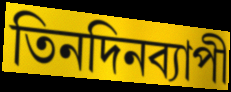
তিনদিনব্যাপী